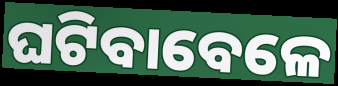
ଘଟିବାବେଳେ